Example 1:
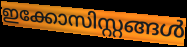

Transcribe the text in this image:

ഇക്കോസിസ്റ്റങ്ങൾ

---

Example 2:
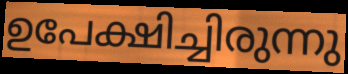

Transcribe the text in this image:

ഉപേക്ഷിച്ചിരുന്നു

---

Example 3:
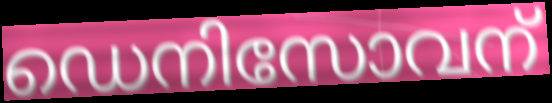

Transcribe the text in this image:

ഡെനിസോവന്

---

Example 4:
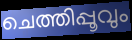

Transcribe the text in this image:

ചെത്തിപ്പൂവും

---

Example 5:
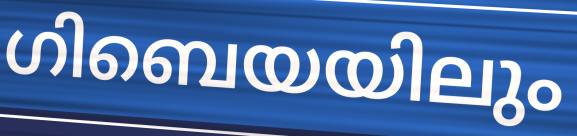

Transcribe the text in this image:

ഗിബെയയിലും